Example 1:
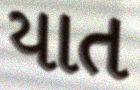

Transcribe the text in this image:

યાત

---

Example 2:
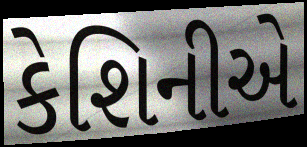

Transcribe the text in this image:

કેશિનીએ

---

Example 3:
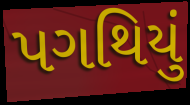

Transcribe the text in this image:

પગથિયું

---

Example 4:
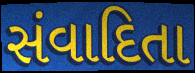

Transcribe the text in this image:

સંવાદિતા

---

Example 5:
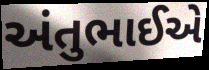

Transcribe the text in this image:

અંતુભાઈએ